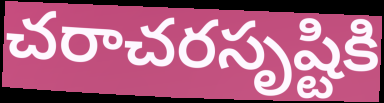
చరాచరసృష్టికి